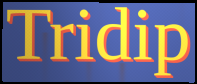
Tridip